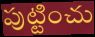
పుట్టించు